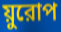
য়ুরোপ